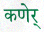
कणेर्